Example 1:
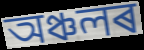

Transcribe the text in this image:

অঞ্চলৰ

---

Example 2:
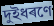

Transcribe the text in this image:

দুইধৰণে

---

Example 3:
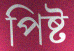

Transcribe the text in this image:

পিষ্ট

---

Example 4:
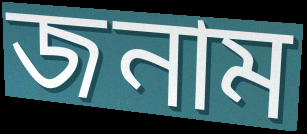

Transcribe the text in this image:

জনাম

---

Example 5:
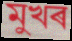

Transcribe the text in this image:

মুখৰ